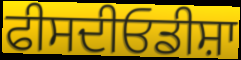
ਫੀਸਦੀਓਡੀਸ਼ਾ